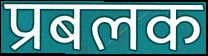
प्रबलक